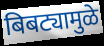
बिबट्यामुळे